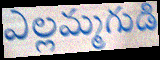
ఎల్లమ్మగుడి